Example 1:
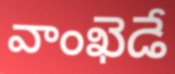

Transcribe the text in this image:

వాంఖెడే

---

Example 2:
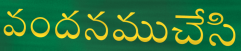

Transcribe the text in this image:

వందనముచేసి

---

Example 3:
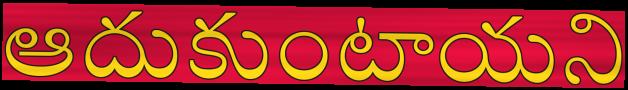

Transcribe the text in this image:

ఆదుకుంటాయని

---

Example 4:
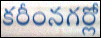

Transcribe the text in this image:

కరీంనగర్లో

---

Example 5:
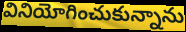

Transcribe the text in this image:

వినియోగించుకున్నాను